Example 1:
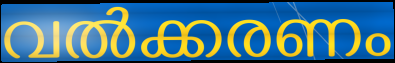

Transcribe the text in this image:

വൽക്കരണം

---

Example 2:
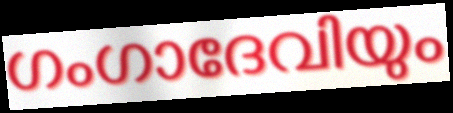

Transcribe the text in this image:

ഗംഗാദേവിയും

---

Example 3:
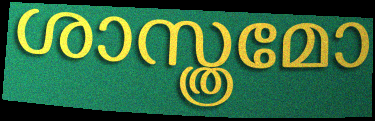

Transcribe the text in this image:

ശാസ്ത്രമോ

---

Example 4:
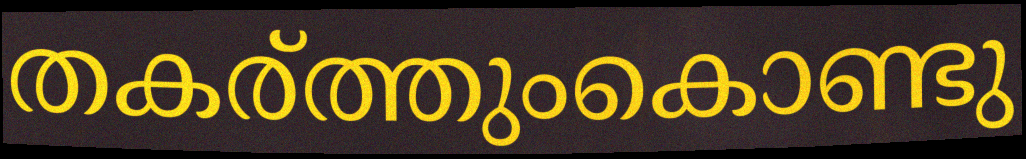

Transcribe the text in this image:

തകര്ത്തുംകൊണ്ടു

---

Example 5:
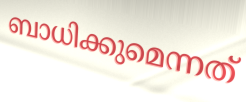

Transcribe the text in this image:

ബാധിക്കുമെന്നത്